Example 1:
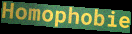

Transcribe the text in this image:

Homophobie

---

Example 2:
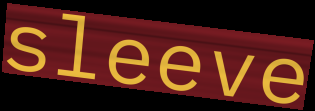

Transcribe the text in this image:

sleeve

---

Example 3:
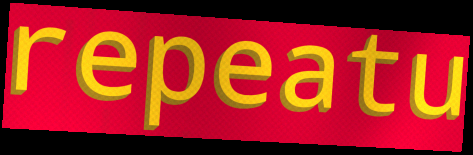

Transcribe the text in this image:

repeatu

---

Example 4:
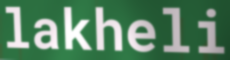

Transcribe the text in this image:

lakheli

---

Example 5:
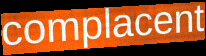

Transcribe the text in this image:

complacent